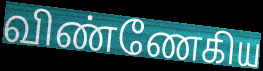
விண்ணேகிய